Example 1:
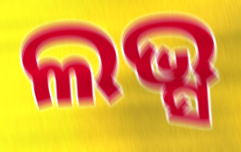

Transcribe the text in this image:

ଲଭ୍ସ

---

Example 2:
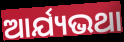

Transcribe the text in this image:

ଆର୍ଯ୍ୟଭଥା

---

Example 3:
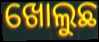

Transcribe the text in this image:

ଖୋଲୁଛ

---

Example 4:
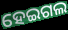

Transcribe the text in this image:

ହେଇଗଲ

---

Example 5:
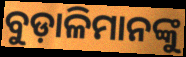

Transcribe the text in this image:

ବୁଡ଼ାଳିମାନଙ୍କୁ